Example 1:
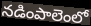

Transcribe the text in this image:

నడింపాలెంలో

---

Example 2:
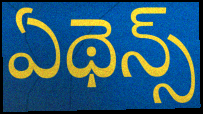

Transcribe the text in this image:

ఏథెన్స్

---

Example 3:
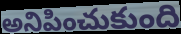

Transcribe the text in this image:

అనిపించుకుంది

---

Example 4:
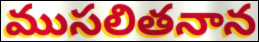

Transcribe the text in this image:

ముసలితనాన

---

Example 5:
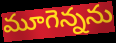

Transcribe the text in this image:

మూగెన్నను